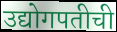
उद्योगपतीची